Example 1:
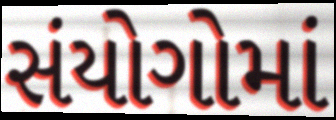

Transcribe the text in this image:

સંયોગોમાં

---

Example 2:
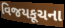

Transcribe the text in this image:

વિજયકૂચના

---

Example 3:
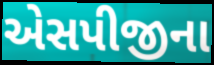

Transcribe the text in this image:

એસપીજીના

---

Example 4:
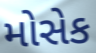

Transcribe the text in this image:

મોસેક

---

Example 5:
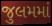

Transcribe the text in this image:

જુલમમાં